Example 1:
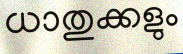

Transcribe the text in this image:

ധാതുക്കളും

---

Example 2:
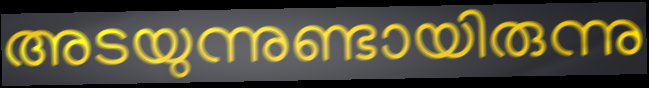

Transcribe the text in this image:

അടയുന്നുണ്ടായിരുന്നു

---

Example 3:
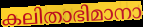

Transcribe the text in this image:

കലിതാഭിമാനാ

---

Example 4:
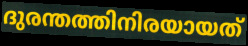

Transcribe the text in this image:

ദുരന്തത്തിനിരയായത്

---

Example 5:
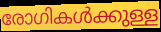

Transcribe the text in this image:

രോഗികൾക്കുള്ള